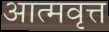
आत्मवृत्त